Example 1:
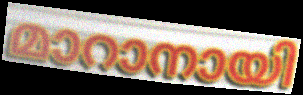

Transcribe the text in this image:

മാറാനായി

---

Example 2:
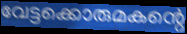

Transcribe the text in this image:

വേട്ടക്കൊരുമകന്റെ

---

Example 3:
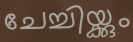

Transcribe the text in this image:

ചേച്ചിയ്ക്കും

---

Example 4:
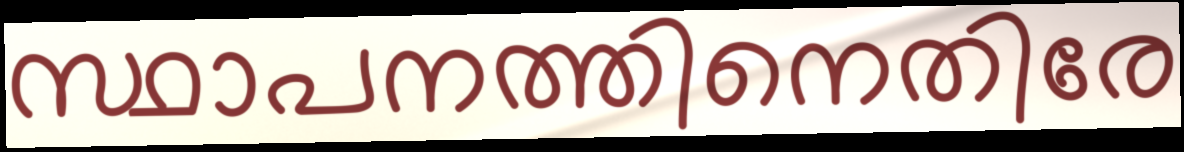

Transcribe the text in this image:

സ്ഥാപനത്തിനെതിരേ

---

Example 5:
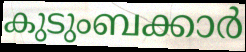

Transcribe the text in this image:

കുടുംബക്കാർ